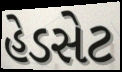
હેડસેટ